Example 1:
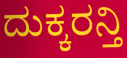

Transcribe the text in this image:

ದುಕ್ಕರನ್ತಿ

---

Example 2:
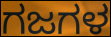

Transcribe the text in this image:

ಗಜಗಳ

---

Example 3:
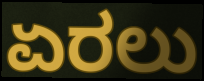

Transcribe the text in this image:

ಏರಲು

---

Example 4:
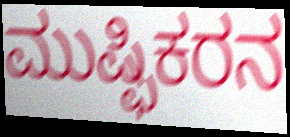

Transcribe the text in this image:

ಮುಷ್ಫಿಕರನ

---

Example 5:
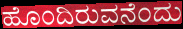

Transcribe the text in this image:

ಹೊಂದಿರುವನೆಂದು